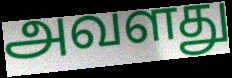
அவளது